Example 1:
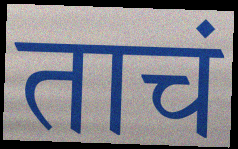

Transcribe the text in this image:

ताचं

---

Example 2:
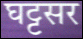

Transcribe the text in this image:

घट्टसर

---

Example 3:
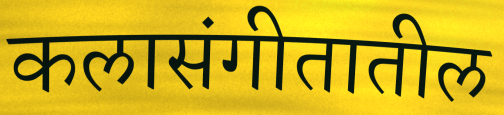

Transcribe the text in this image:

कलासंगीतातील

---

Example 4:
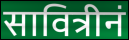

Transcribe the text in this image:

सावित्रीनं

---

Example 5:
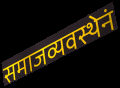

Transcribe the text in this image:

समाजव्यवस्थेनं